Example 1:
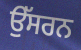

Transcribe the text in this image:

ਉੱਸਰਨ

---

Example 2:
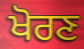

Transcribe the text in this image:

ਖੋਰਣ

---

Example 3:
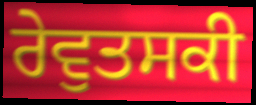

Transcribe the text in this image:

ਰੇਵੁਤਸਕੀ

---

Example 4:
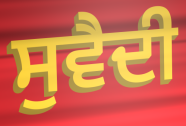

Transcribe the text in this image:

ਸੁਵੈਦੀ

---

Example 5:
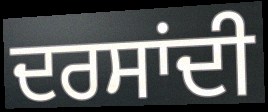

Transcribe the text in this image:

ਦਰਸਾਂਦੀ